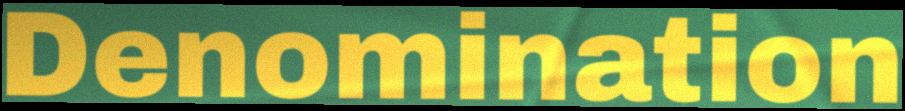
Denomination